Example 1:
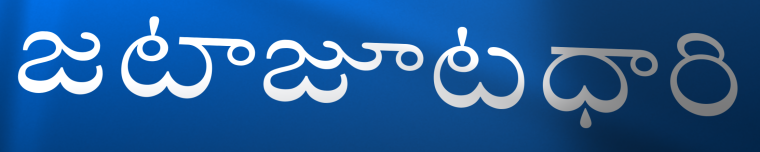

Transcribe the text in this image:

జటాజూటధారి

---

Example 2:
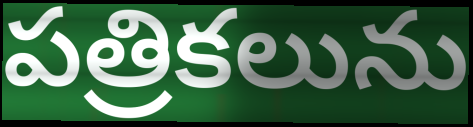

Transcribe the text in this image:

పత్రికలును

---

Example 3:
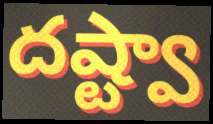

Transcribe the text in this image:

దష్ట్వా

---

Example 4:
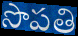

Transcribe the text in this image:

సొపతి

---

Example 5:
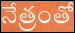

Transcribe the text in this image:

నేత్రంతో